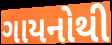
ગાયનોથી